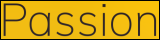
Passion